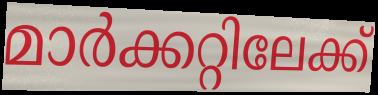
മാർക്കറ്റിലേക്ക്